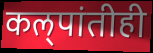
कल्पांतीही